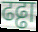
ढढ्ढा